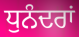
ਧੁਨੰਦਰਾਂ